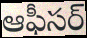
ఆఫీసర్